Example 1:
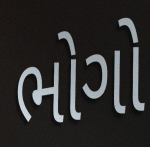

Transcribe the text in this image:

ભોગો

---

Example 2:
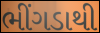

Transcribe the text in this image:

ભીંગડાથી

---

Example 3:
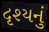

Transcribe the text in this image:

દૃશ્યનું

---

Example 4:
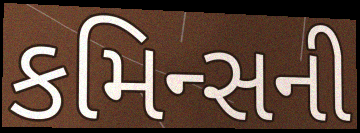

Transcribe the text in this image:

કમિન્સની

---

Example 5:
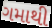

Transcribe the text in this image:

ગમાથી